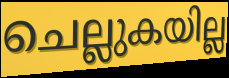
ചെല്ലുകയില്ല